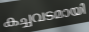
കച്ചവടമായി